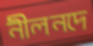
নীলনদে